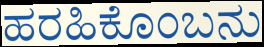
ಹರಹಿಕೊಂಬನು